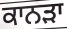
ਕਾਨੜਾ